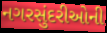
નગરસુંદરીઓની